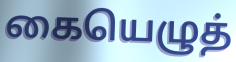
கையெழுத்